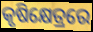
କୃଷିକ୍ଷେତ୍ରରେ